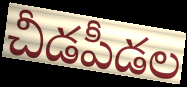
చీడపీడల